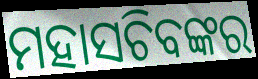
ମହାସଚିବଙ୍କର